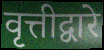
वृत्तीद्वारे